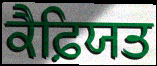
ਕੈਫ਼ਿਯਤ